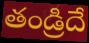
తండ్రిదే